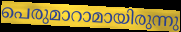
പെരുമാറാമായിരുന്നു